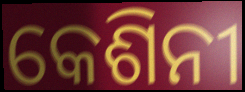
କେଶିନୀ